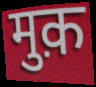
मुक़